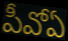
పీవోఏ